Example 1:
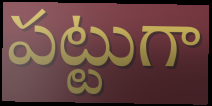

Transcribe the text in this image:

పట్టుగా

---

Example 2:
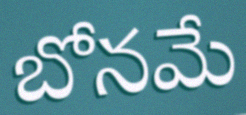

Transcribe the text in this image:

బోనమే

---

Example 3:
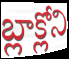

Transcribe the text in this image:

బ్లాక్లోని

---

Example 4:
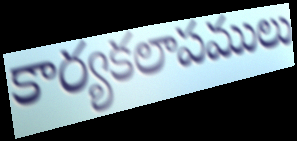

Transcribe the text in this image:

కార్యకలాపములు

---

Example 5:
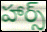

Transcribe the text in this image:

హార్స్